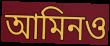
আমিনও